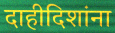
दाहीदिशांना